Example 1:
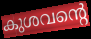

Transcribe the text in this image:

കുശവന്റെ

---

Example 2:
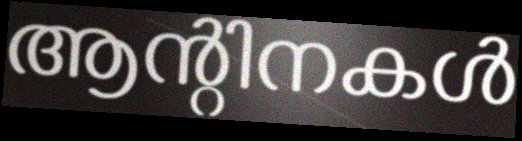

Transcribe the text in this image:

ആന്റിനകൾ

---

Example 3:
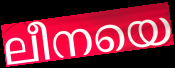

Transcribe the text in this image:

ലീനയെ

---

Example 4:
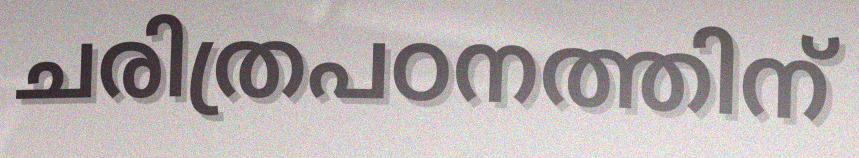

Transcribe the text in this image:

ചരിത്രപഠനത്തിന്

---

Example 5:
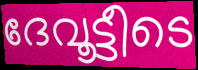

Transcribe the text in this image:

ദേവൂട്ടീടെ